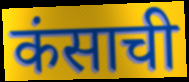
कंसाची